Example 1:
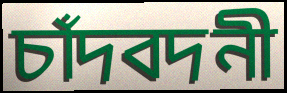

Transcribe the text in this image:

চাঁদবদনী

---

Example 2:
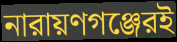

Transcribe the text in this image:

নারায়ণগঞ্জেরই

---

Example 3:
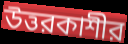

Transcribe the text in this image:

উত্তরকাশীর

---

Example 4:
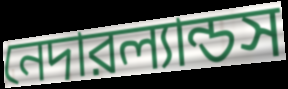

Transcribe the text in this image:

নেদারল্যান্ডস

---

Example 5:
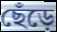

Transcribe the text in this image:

ছেঁড়ে